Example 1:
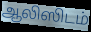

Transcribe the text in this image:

ஆலிஸிடம்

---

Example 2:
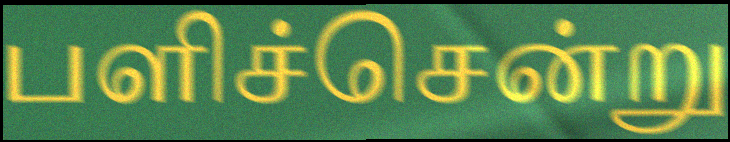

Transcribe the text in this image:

பளிச்சென்று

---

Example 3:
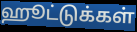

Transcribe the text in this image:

ஹூட்டுக்கள்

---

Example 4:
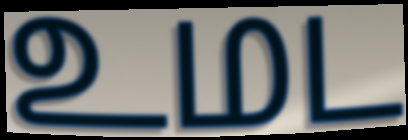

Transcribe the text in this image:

உமட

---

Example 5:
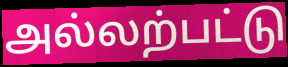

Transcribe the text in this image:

அல்லற்பட்டு